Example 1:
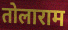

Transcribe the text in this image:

तोलाराम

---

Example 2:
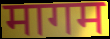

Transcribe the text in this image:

मागम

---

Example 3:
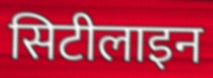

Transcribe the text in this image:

सिटीलाइन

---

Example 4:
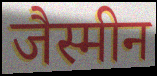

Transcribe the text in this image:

जैस्‍मीन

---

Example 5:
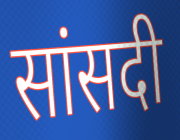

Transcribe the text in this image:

सांसदी